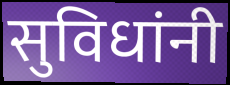
सुविधांनी